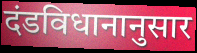
दंडविधानानुसार